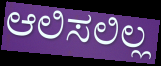
ಆಲಿಸಲಿಲ್ಲ